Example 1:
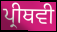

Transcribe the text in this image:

ਪ੍ਰੀਥਵੀ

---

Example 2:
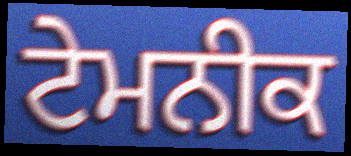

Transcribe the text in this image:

ਟੇਮਨੀਕ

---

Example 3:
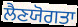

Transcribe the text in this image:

ਲੈਣਯੋਗਤਾ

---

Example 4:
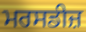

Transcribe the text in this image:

ਮਰਸਡੀਜ਼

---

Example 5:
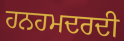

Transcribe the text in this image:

ਹਨਹਮਦਰਦੀ